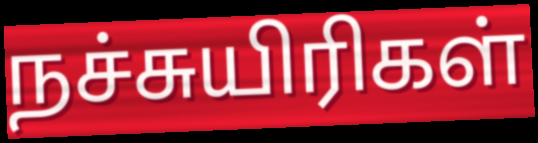
நச்சுயிரிகள்